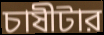
চাষীটার